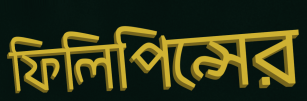
ফিলিপিন্সের